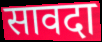
सावदा